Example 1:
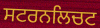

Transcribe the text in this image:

ਸਟਰਨਲਿਚਟ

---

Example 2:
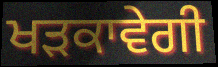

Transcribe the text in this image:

ਖੜਕਾਵੇਗੀ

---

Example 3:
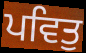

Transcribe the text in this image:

ਪਵਿਤੁ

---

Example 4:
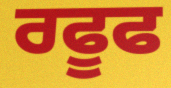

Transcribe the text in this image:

ਰਫੂਫ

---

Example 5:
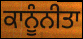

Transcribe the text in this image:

ਕਾਨੂੰਨੀਤਾ